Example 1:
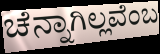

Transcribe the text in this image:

ಚೆನ್ನಾಗಿಲ್ಲವೆಂಬ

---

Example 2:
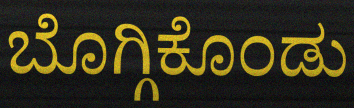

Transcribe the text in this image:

ಬೊಗ್ಗಿಕೊಂಡು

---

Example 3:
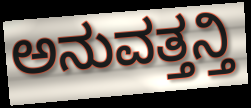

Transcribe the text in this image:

ಅನುವತ್ತನ್ತಿ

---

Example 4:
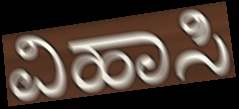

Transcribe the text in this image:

ವಿಹಾಸಿ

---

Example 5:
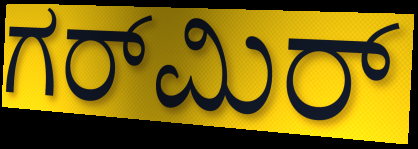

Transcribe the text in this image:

ಗರ್‌ಮಿರ್